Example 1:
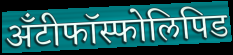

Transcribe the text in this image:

अँटीफॉस्फोलिपिड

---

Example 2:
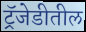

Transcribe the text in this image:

ट्रॅजेडीतील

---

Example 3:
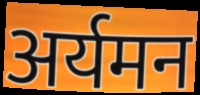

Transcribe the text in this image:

अर्यमन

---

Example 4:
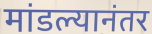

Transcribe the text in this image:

मांडल्यानंतर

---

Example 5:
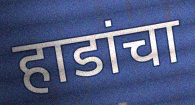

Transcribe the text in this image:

हाडांचा